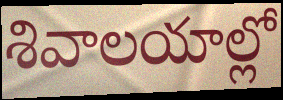
శివాలయాల్లో